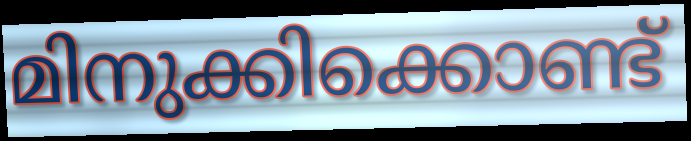
മിനുക്കിക്കൊണ്ട്